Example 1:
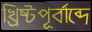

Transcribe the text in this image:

খ্রিষ্টপূর্বাব্দে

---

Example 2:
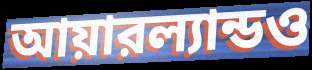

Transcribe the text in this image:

আয়ারল্যান্ডও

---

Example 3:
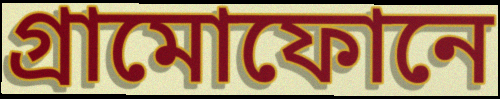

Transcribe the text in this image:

গ্রামোফোনে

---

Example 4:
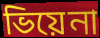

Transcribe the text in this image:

ভিয়েনা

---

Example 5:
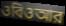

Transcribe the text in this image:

ওবিওআর